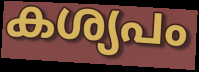
കശ്യപം